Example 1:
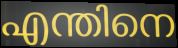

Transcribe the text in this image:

എന്തിനെ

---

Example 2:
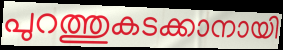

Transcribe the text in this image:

പുറത്തുകടക്കാനായി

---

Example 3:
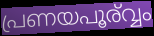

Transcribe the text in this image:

പ്രണയപൂര്വ്വം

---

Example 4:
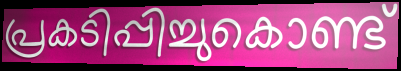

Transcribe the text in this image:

പ്രകടിപ്പിച്ചുകൊണ്ട്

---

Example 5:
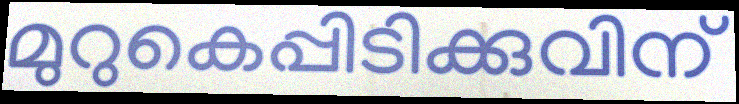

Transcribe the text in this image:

മുറുകെപ്പിടിക്കുവിന്